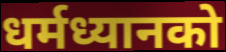
धर्मध्यानको